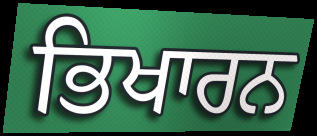
ਭਿਖਾਰਨ